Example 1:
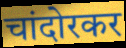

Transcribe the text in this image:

चांदोरकर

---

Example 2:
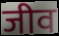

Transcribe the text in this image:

जीव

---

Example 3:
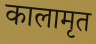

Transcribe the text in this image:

कालामृत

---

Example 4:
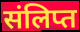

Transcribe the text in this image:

संलिप्त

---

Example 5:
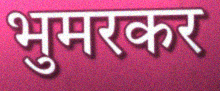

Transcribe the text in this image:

भुमरकर